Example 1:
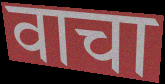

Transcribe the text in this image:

वाचा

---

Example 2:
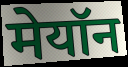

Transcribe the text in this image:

मेयॉन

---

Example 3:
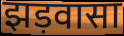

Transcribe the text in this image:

झड़वासा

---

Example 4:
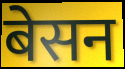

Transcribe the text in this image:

बेसन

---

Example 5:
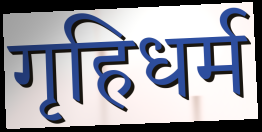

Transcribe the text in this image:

गृहिधर्म